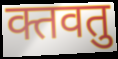
क्तवतु